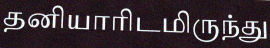
தனியாரிடமிருந்து